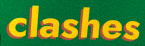
clashes